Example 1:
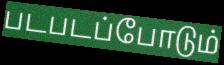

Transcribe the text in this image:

படபடப்போடும்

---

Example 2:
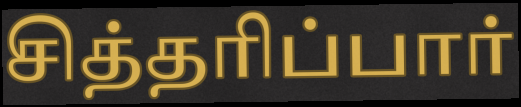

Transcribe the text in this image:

சித்தரிப்பார்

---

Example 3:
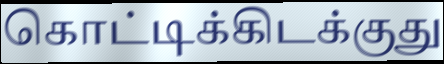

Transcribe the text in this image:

கொட்டிக்கிடக்குது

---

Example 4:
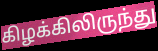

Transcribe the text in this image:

கிழக்கிலிருந்து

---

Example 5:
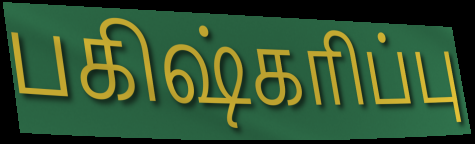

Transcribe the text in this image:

பகிஷ்கரிப்பு